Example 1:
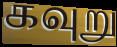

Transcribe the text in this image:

கவுறு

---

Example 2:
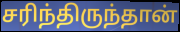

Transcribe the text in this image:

சரிந்திருந்தான்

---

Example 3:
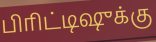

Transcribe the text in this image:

பிரிட்டிஷுக்கு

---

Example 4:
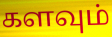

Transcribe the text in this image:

களவும்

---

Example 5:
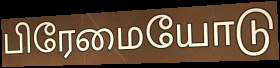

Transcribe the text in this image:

பிரேமையோடு